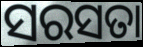
ସରସତା